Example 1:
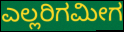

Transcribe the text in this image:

ಎಲ್ಲರಿಗಮೀಗ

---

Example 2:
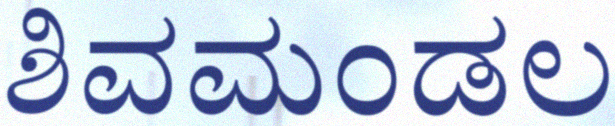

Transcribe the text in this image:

ಶಿವಮಂಡಲ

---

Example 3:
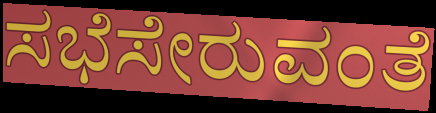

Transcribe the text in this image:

ಸಭೆಸೇರುವಂತೆ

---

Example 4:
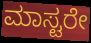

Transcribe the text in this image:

ಮಾಸ್ಟರೇ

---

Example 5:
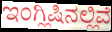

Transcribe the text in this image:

ಇಂಗ್ಲಿಷಿನಲ್ಲಿವೆ